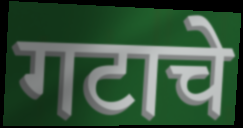
गटाचे